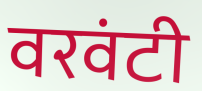
वरवंटी